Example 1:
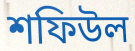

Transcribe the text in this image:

শফিউল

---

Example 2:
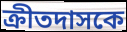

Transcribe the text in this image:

ক্রীতদাসকে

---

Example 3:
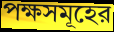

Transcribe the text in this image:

পক্ষসমূহের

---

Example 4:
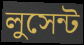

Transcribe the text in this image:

লুসেন্ট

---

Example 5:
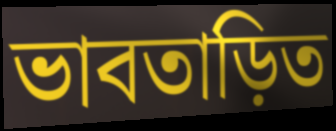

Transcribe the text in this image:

ভাবতাড়িত